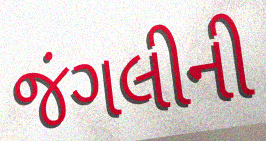
જંગલીની